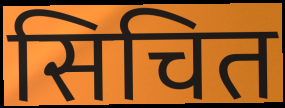
सिचित